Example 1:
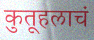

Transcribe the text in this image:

कुतूहलाचं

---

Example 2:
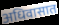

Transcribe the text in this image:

अधिवासात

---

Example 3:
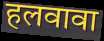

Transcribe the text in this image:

हलवावा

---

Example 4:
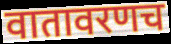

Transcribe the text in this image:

वातावरणच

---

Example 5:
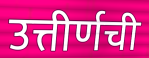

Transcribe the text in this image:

उत्तीर्णची